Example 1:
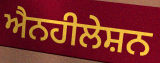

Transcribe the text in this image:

ਐਨਹੀਲੇਸ਼ਨ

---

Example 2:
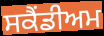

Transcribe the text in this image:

ਸਕੈਂਡੀਅਮ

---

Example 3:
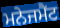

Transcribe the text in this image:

ਮਨੇਜਮੈਂਟ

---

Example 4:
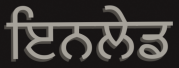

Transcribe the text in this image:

ਇਨਲੇਡ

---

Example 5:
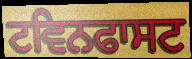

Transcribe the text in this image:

ਟਵਿਨਫਾਸਟ